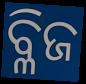
ବ୍ଳିଜ